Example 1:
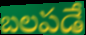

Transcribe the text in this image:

బలపడే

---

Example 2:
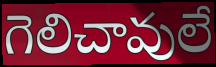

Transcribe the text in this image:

గెలిచావులే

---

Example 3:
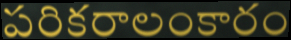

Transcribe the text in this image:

పరికరాలంకారం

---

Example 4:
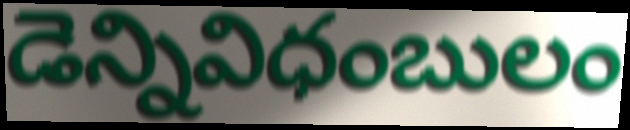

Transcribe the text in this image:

డెన్నివిధంబులం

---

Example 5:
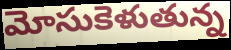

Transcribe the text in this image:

మోసుకెళుతున్న